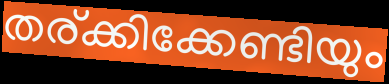
തര്ക്കിക്കേണ്ടിയും